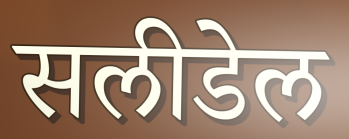
सलीडेल